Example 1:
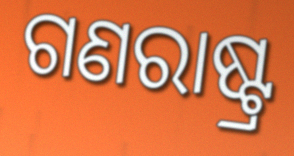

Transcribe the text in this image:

ଗଣରାଷ୍ଟ୍ର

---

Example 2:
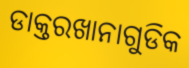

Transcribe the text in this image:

ଡାକ୍ତରଖାନାଗୁଡିକ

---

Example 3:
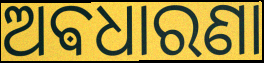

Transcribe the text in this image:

ଅଵଧାରଣା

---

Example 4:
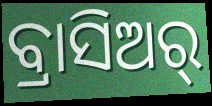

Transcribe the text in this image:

ବ୍ରାସିଅର୍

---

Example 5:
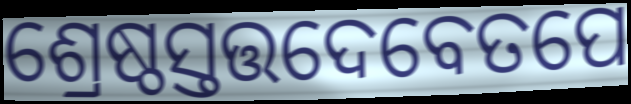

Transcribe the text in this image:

ଶ୍ରେଷ୍ଠସ୍ତତ୍ତଦେବେତପେ